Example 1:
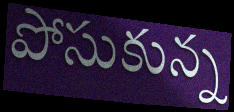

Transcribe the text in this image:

పోసుకున్న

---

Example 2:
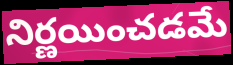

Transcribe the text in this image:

నిర్ణయించడమే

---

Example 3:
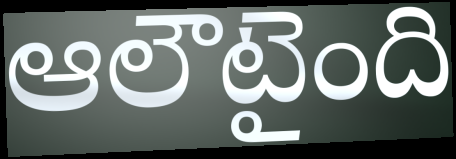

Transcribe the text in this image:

ఆలౌటైంది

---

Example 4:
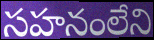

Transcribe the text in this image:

సహనంలేని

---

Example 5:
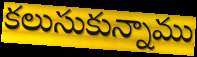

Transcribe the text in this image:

కలుసుకున్నాము